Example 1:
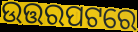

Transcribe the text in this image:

ଉତ୍ତରପଟରେ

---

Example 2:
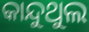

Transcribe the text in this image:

କାନ୍ଦୁଥୁଲ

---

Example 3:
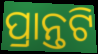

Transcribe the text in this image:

ପ୍ରାନ୍ତଟି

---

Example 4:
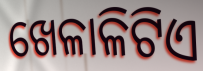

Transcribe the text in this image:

ଖେଳାଳିଟିଏ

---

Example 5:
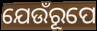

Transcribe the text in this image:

ଯେଉଁରୂପେ